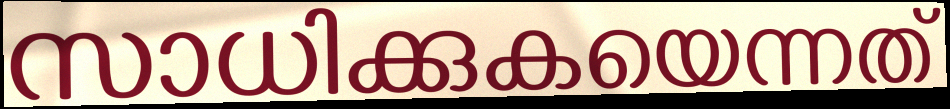
സാധിക്കുകയെന്നത്